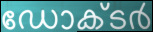
ഡോക്ടർ